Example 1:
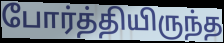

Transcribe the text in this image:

போர்த்தியிருந்த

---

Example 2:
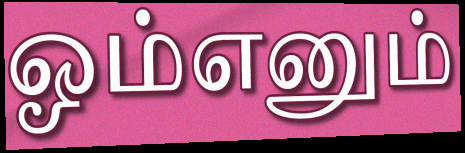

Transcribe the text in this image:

ஓம்எனும்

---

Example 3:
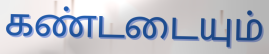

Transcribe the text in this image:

கண்டடையும்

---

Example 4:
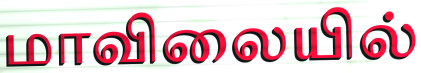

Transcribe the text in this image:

மாவிலையில்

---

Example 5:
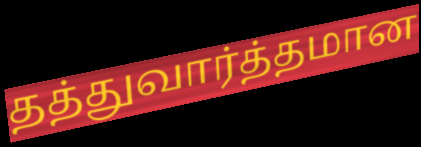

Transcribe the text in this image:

தத்துவார்த்தமான